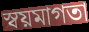
স্বয়মাগতা